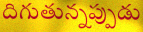
దిగుతున్నప్పుడు